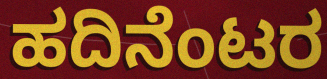
ಹದಿನೆಂಟರ